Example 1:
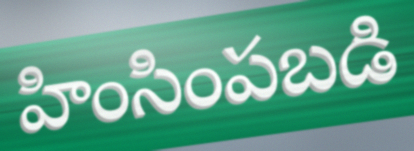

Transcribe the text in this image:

హింసింపబడి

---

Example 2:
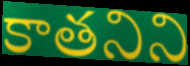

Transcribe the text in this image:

కాతనిని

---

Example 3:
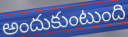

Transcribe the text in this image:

అందుకుంటుంది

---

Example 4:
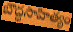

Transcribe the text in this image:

బౌద్ధసాహిత్యం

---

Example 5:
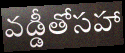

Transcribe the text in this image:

వడ్డీతోసహా